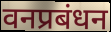
वनप्रबंधन